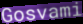
Gosvami